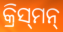
କ୍ରିସ୍‍ମନ୍